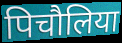
पिचौलिया